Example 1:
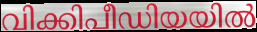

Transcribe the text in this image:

വിക്കിപീഡിയയിൽ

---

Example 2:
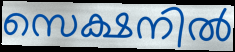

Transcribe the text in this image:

സെക്ഷനിൽ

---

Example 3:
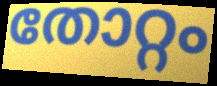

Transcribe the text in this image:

തോറ്റം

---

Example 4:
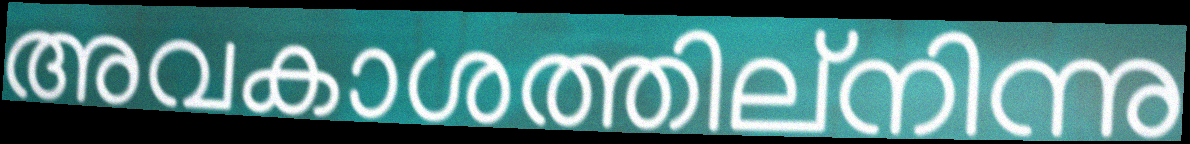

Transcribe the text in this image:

അവകാശത്തില്നിന്നു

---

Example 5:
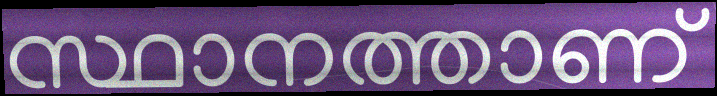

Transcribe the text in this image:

സ്ഥാനത്താണ്